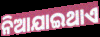
ନିଆଯାଇଥାଏ